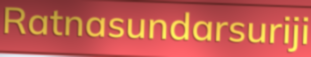
Ratnasundarsuriji